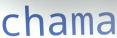
chama